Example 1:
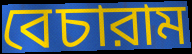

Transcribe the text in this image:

বেচারাম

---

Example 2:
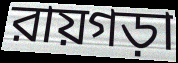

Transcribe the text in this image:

রায়গড়া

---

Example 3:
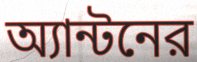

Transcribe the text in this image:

অ্যান্টনের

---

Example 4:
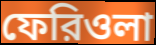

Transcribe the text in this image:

ফেরিওলা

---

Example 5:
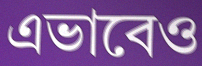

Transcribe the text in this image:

এভাবেও